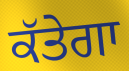
ਕੱਤੇਗਾ